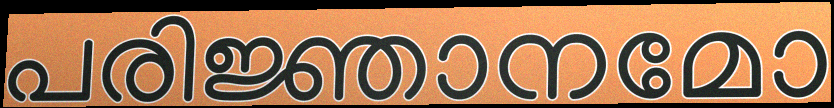
പരിജ്ഞാനമോ